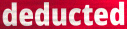
deducted